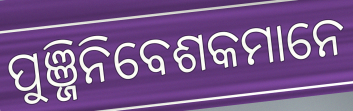
ପୁଞ୍ଜିନିବେଶକମାନେ